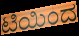
ಟಿಯಿಂದ